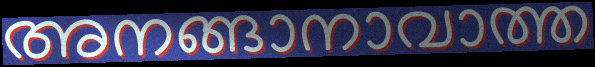
അനങ്ങാനാവാത്ത